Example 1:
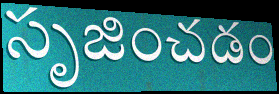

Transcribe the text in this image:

సృజించడం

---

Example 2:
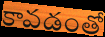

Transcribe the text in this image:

కావడంతో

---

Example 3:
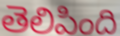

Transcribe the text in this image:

తెలిపింది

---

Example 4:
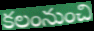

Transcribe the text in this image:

కలంనుంచి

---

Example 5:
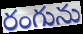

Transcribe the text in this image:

రంగును